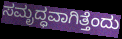
ಸಮೃದ್ಧವಾಗಿತ್ತೆಂದು